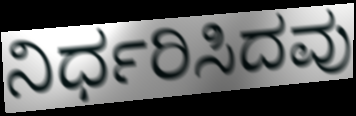
ನಿರ್ಧರಿಸಿದವು